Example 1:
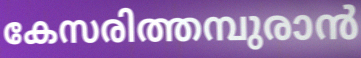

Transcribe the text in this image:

കേസരിത്തമ്പുരാൻ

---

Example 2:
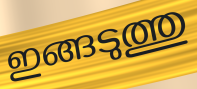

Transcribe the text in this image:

ഇങ്ങടുത്തു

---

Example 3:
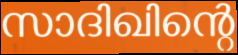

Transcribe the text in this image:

സാദിഖിന്റെ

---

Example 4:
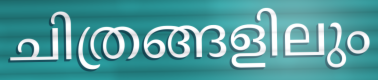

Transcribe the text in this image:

ചിത്രങ്ങളിലും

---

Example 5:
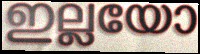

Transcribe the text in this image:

ഇല്ലയോ